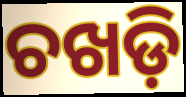
ଚଖଡ଼ି